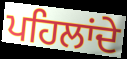
ਪਹਿਲਾਂਦੇ